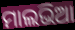
ମାଲଭିଆ